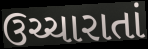
ઉચ્ચારાતાં